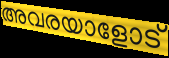
അവരയാളോട്